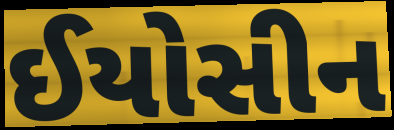
ઈયોસીન